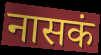
नासकं